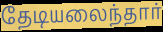
தேடியலைந்தார்